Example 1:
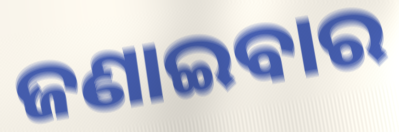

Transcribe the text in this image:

ଜଣାଇବାର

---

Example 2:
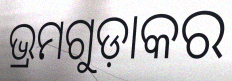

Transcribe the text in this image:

ଭ୍ରମଗୁଡ଼ାକର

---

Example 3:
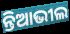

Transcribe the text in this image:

ନ୍ତିଆଭୀଲ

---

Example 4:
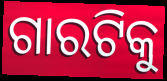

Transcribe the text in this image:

ଗାରଟିକୁ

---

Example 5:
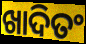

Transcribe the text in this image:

ଖାଦିତଂ